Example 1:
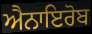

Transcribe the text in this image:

ਐਨਾਇਰੋਬ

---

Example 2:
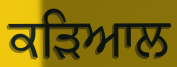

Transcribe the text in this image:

ਕੜਿਆਲ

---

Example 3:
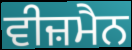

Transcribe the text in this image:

ਵੀਜ਼ਮੈਨ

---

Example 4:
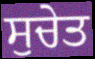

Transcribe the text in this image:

ਸੁਚੇਤ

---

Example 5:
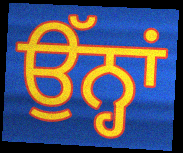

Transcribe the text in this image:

ਉੱਨ੍ਹਾਂ